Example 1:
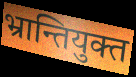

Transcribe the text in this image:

भ्रान्तियुक्त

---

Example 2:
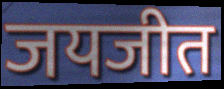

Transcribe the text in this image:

जयजीत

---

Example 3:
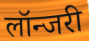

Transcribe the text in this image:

लॉन्जरी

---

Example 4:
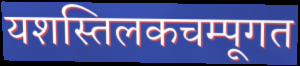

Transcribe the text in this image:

यशस्तिलकचम्पूगत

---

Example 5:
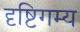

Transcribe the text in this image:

दृष्टिगम्य